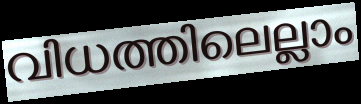
വിധത്തിലെല്ലാം